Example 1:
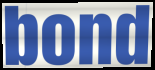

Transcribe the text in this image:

bond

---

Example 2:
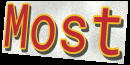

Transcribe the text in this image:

Most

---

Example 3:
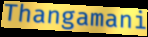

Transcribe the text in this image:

Thangamani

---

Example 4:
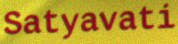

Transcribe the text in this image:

Satyavati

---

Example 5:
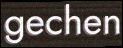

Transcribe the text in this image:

gechen